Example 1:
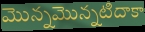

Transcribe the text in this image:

మొన్నమొన్నటిదాకా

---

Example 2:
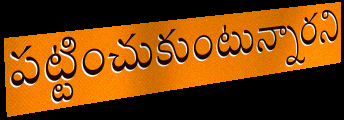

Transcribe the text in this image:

పట్టించుకుంటున్నారని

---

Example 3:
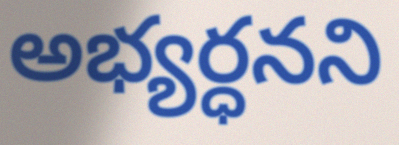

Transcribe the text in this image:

అభ్యర్ధనని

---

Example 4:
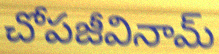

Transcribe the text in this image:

చోపజీవినామ్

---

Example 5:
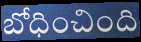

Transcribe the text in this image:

బోధించింది